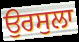
ਉਰਸੁਲਾ